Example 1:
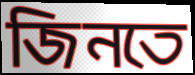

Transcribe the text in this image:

জিনতে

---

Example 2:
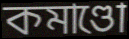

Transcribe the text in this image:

কমাণ্ডো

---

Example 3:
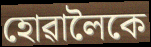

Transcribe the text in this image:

হোৱালৈকে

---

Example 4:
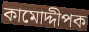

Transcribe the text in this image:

কামোদ্দীপক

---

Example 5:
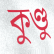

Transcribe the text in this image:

কুণ্ডু